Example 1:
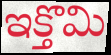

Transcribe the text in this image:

ఇక్తొమి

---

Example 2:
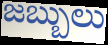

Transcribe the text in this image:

జబ్బులు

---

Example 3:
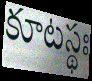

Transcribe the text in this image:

కూటస్థః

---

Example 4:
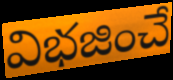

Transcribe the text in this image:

విభజించే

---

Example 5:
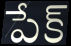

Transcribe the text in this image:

పేక్